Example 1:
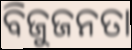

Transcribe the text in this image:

ବିଜୁଜନତା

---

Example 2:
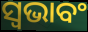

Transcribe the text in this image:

ସ୍ଵଭାବଂ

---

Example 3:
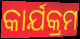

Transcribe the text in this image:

କାର୍ଯକ୍ରମ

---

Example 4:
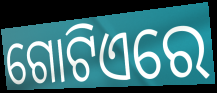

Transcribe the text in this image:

ଗୋଟିଏରେ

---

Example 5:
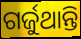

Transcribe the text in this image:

ଗର୍ଜୁଥାନ୍ତି